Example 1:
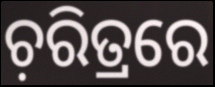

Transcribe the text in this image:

ଚ଼ରିତ୍ରରେ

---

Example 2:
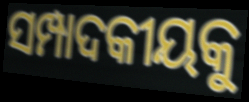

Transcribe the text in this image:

ସମ୍ପାଦକୀୟକୁ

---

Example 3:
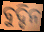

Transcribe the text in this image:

ବୁଦ୍ଦିନ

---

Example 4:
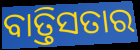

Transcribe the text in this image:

ବାତ୍ତିସତାର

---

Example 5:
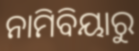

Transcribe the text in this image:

ନାମିବିୟାରୁ